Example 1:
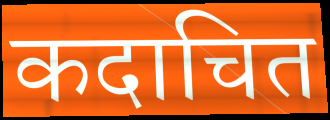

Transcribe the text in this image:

कदाचित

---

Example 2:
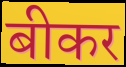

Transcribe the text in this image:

बीकर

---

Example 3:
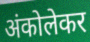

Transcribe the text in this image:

अंकोलेकर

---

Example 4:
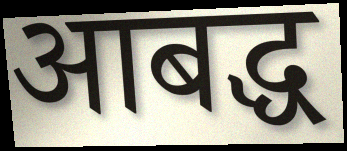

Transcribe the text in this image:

आबद्ध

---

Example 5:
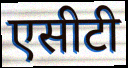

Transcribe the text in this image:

एसीटी